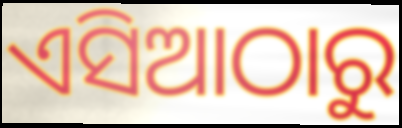
ଏସିଆଠାରୁ